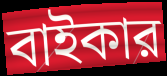
বাইকার